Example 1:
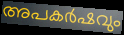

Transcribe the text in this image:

അപകർഷവും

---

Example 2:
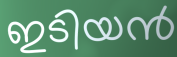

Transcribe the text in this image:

ഇടിയൻ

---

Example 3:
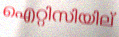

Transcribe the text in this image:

ഐറ്റിസിയില്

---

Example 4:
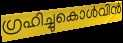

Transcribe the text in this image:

ഗ്രഹിച്ചുകൊൾവിൻ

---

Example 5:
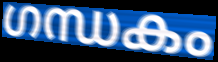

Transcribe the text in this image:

ഗന്ധകം